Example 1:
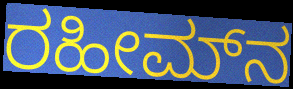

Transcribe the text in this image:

ರಹೀಮ್‌ನ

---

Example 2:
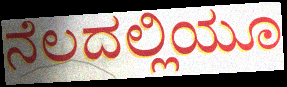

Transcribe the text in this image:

ನೆಲದಲ್ಲಿಯೂ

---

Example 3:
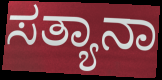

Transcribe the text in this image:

ಸತ್ಯಾನಾ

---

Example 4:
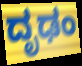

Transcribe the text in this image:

ದೃಢಂ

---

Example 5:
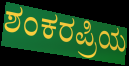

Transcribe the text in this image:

ಶಂಕರಪ್ರಿಯ